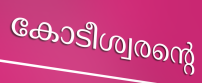
കോടീശ്വരന്റെ